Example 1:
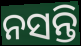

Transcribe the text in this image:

ନସନ୍ତି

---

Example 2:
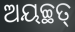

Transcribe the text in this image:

ଅୟଚ୍ଛତ୍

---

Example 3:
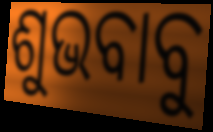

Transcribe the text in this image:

ଶୁଭବାବୁ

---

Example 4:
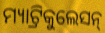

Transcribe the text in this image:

ମ୍ୟାଟ୍ରିକୁଲେସନ୍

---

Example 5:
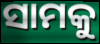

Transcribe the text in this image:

ସାମକୁ